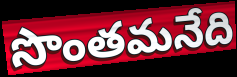
సొంతమనేది